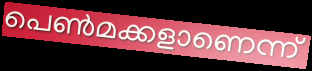
പെൺമക്കളാണെന്ന്